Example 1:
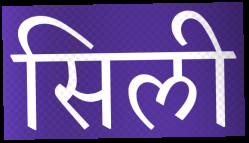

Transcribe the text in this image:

सिली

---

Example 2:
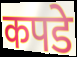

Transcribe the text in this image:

कपडे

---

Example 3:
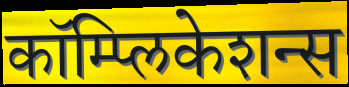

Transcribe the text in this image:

कॉम्प्लिकेशन्स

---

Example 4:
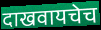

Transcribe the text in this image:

दाखवायचेच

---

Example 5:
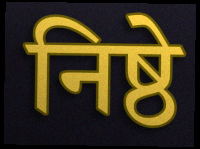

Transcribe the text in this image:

निष्ठे